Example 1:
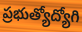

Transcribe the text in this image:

ప్రభుత్యోద్యోగి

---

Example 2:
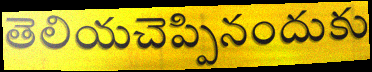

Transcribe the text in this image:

తెలియచెప్పినందుకు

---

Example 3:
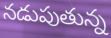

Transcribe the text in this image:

నడుపుతున్న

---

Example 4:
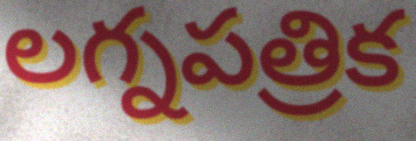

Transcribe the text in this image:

లగ్నపత్రిక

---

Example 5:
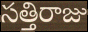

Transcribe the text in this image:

సత్తిరాజు